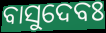
ବାସୁଦେବଃ